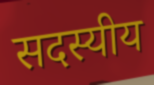
सदस्यीय